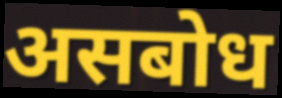
असबोध